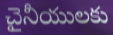
చైనీయులకు